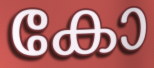
കോ